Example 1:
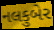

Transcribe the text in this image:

નલકુબેર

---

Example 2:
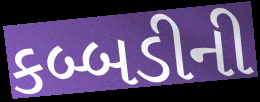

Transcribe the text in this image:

કબ્બડીની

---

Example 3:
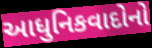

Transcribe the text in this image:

આધુનિકવાદોનો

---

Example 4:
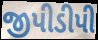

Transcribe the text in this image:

જીપીડીપી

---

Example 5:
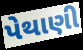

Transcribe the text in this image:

પેથાણી